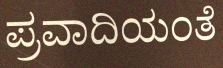
ಪ್ರವಾದಿಯಂತೆ